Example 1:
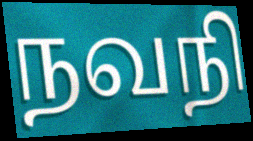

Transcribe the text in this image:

நவநி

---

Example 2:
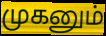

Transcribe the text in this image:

முகனும்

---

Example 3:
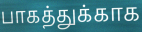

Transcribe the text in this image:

பாகத்துக்காக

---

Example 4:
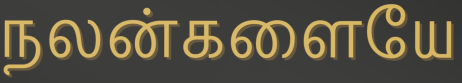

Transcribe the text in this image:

நலன்களையே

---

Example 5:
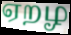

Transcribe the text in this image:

ஏறழ